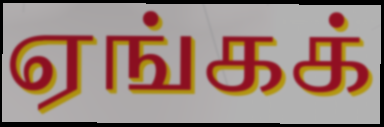
ஏங்கக்